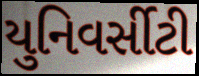
યુનિવર્સીટી